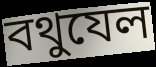
বথুযেল